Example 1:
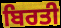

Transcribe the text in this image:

ਬਿਰਤੀ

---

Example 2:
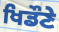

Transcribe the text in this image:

ਖਿਡੌਣੇ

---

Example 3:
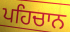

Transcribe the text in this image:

ਪਹਿਚਾਨ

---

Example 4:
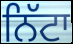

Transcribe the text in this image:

ਨਿੱਟਾ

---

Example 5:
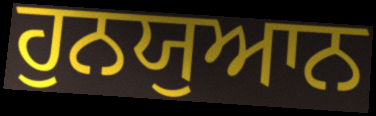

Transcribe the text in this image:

ਹੁਨਯੁਆਨ